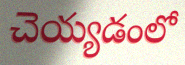
చెయ్యడంలో